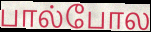
பால்போல